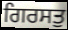
ਗਿਰਸਤੁ